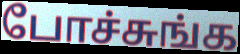
போச்சுங்க